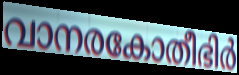
വാനരകോതീഭിർ